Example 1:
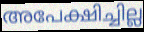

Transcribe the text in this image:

അപേക്ഷിച്ചില്ല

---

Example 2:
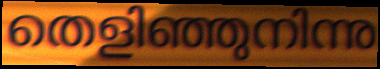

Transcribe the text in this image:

തെളിഞ്ഞുനിന്നു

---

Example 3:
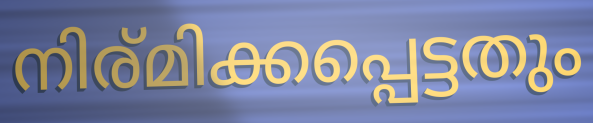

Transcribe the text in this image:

നിര്മിക്കപ്പെട്ടതും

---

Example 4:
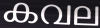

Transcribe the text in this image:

കവല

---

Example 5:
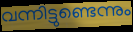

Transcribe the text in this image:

വന്നിട്ടുണ്ടെന്നും